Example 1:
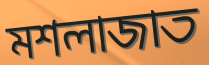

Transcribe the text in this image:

মশলাজাত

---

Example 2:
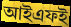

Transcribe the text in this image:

আইএফই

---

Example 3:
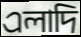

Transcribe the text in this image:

এলাদি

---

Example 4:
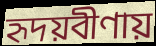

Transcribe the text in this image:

হৃদয়বীণায়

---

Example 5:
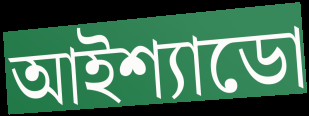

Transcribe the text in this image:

আইশ্যাডো